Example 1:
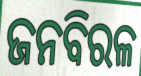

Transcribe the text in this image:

ଜନବିରଳ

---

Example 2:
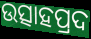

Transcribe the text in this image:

ଉତ୍ସାହପ୍ରଦ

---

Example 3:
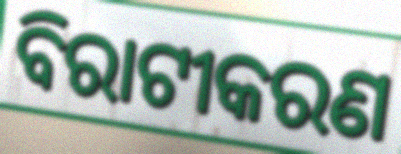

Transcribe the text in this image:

ବିରାଟୀକରଣ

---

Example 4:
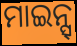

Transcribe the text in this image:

ମାଇନ୍ସ୍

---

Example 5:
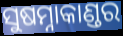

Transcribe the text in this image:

ସୁଷମ୍ନାକାଣ୍ଡର